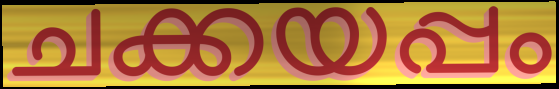
ചക്കയപ്പം